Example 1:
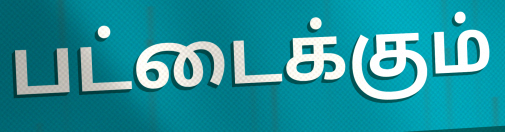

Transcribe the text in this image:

பட்டைக்கும்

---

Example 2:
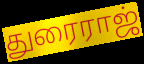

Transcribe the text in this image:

துரைராஜ்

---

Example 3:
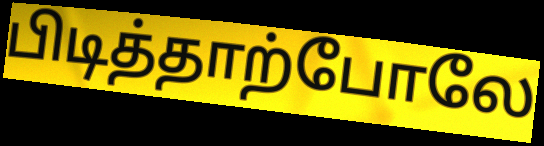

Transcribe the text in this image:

பிடித்தாற்போலே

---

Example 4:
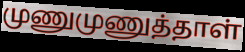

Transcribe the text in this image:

முணுமுணுத்தாள்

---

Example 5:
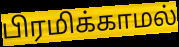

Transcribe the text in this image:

பிரமிக்காமல்